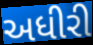
અધીરી